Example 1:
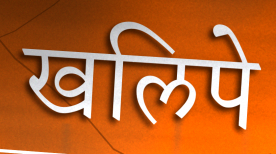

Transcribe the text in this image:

खलिपे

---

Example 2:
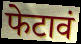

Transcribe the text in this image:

फेटावं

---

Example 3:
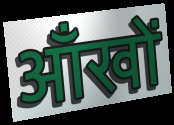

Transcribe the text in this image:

आँखों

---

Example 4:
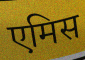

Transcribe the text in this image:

एमिस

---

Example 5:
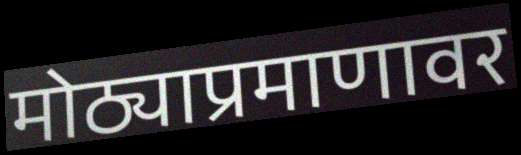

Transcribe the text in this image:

मोठ्याप्रमाणावर